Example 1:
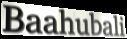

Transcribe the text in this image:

Baahubali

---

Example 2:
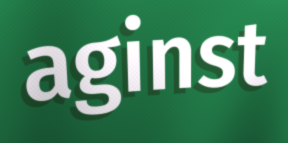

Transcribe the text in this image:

aginst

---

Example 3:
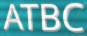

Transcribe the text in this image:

ATBC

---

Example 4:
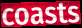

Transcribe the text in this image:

coasts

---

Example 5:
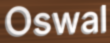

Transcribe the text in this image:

Oswal